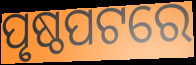
ପୃଷ୍ଠପଟରେ